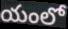
యంలో